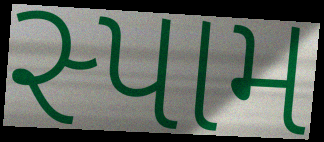
સ્પામ